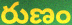
రుణం